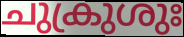
ചുക്രുശുഃ